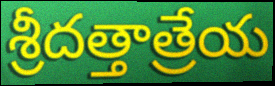
శ్రీదత్తాత్రేయ